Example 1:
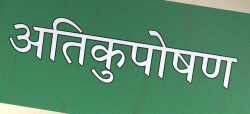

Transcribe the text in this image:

अतिकुपोषण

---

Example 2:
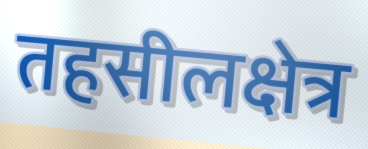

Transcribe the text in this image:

तहसीलक्षेत्र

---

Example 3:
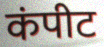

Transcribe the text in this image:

कंपीट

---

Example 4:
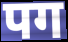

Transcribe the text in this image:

पग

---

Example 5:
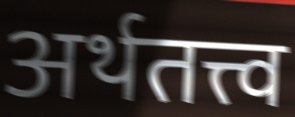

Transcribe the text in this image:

अर्थतत्त्व